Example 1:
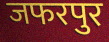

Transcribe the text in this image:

जफरपुर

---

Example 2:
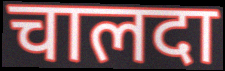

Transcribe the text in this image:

चालदा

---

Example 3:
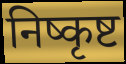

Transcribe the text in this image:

निष्कृष्ट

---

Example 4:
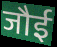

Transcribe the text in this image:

जौई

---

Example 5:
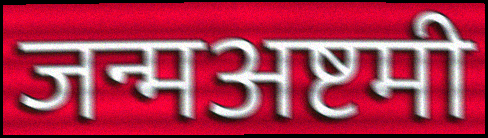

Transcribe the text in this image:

जन्मअष्टमी